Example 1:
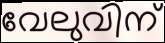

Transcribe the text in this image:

വേലുവിന്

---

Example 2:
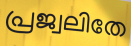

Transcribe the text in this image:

പ്രജ്വലിതേ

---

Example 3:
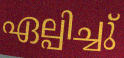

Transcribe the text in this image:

ഏല്പിച്ചു്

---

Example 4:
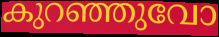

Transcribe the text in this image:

കുറഞ്ഞുവോ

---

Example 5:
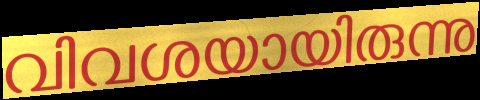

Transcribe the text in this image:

വിവശയായിരുന്നു